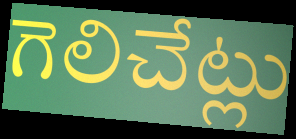
గెలిచేట్లు